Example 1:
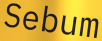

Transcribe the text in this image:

Sebum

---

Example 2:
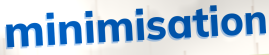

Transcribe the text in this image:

minimisation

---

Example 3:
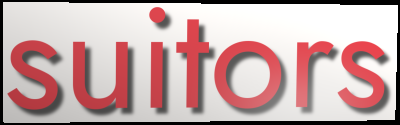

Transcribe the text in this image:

suitors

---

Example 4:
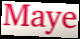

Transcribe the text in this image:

Maye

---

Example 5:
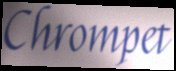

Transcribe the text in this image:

Chrompet